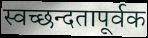
स्वच्छन्दतापूर्वक